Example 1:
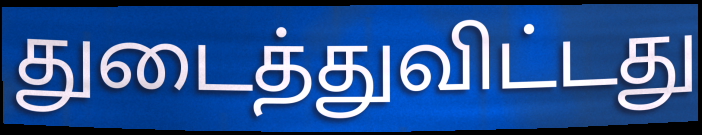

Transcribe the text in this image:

துடைத்துவிட்டது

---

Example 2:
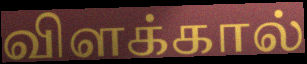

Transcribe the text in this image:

விளக்கால்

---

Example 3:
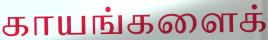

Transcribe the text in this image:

காயங்களைக்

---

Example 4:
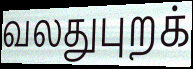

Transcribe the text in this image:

வலதுபுறக்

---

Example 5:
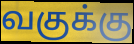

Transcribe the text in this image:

வகுக்கு